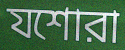
যশোরা